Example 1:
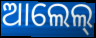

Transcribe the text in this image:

ଆଲେଲ୍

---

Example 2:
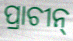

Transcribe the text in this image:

ପ୍ରାଚୀନ୍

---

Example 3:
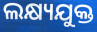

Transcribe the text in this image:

ଲକ୍ଷ୍ୟଯୁକ୍ତ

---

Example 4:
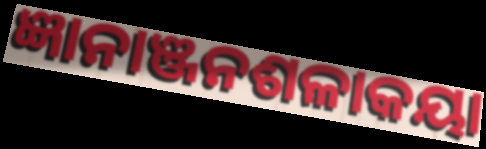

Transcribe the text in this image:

ଜ୍ଞାନାଞ୍ଜନଶଳାକୟା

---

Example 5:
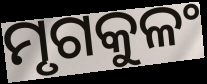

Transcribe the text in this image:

ମୃଗକୁଳଂ